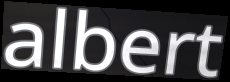
albert